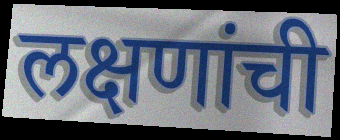
लक्षणांची